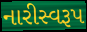
નારીસ્વરૂપ